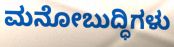
ಮನೋಬುದ್ಧಿಗಳು